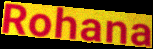
Rohana